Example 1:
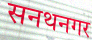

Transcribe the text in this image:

सनथनगर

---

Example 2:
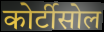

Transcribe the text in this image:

कोर्टीसोल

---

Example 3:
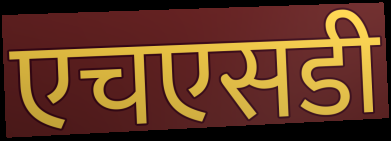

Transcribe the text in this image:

एचएसडी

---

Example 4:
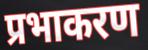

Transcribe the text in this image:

प्रभाकरण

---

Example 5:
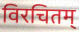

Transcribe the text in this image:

विरचितम्